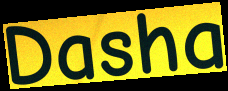
Dasha